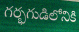
గర్భగుడిలోనికి